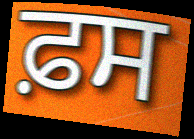
ਫ਼ਸ